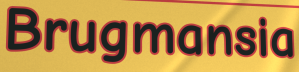
Brugmansia